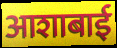
आशाबाई